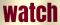
watch